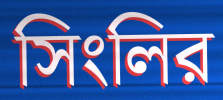
সিংলির